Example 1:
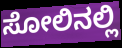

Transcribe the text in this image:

ಸೋಲಿನಲ್ಲಿ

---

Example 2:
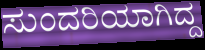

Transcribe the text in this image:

ಸುಂದರಿಯಾಗಿದ್ದ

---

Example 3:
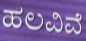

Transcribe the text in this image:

ಹಲವಿವೆ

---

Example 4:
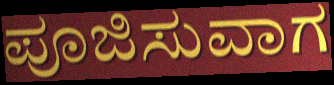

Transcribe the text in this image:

ಪೂಜಿಸುವಾಗ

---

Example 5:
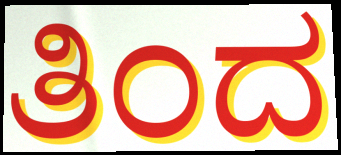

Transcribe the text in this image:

ತಿಂದ